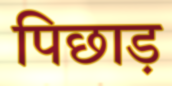
पिछाड़